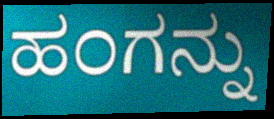
ಹಂಗನ್ನು